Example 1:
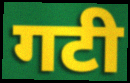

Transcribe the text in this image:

गटी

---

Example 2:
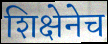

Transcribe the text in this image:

शिक्षेनेच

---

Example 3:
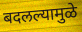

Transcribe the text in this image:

बदलल्यामुळे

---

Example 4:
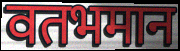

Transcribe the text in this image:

वतभमान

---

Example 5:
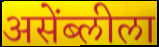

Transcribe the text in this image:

असेंब्लीला